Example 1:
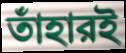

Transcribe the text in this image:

তাঁহারই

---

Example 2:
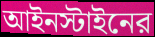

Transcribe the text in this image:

আইনস্টাইনের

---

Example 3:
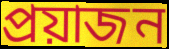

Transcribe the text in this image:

প্রয়াজন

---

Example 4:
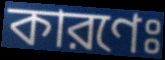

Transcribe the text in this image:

কারণেঃ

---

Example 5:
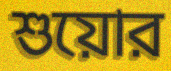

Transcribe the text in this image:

শুয়োর